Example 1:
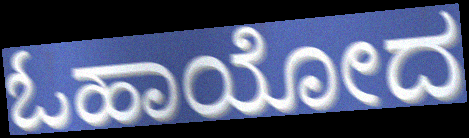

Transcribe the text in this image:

ಓಹಾಯೋದ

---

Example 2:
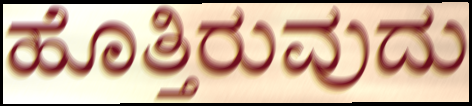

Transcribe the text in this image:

ಹೊತ್ತಿರುವುದು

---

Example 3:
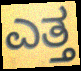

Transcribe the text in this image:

ಎತ್ತ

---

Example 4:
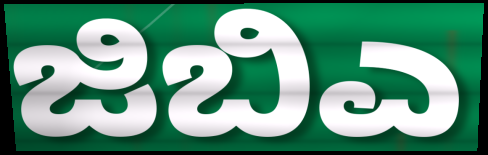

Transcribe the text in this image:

ಜಿಬಿಎ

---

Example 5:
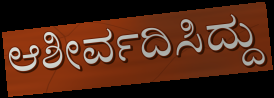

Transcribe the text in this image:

ಆಶೀರ್ವದಿಸಿದ್ದು